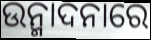
ଉନ୍ମାଦନାରେ